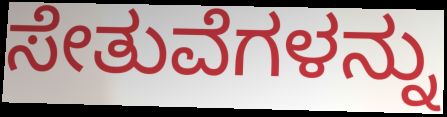
ಸೇತುವೆಗಳನ್ನು